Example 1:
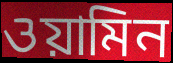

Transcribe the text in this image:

ওয়ামিন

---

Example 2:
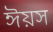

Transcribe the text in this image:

ঈয়স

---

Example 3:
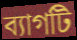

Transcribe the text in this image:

ব্যাগটি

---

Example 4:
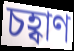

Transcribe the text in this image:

চহ্বাণ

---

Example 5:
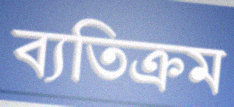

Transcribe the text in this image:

ব্যতিক্রম